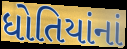
ધોતિયાંનાં